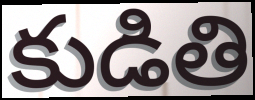
కుడితి